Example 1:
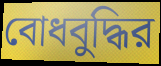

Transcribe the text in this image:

বোধবুদ্ধির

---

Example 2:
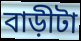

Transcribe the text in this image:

বাড়ীটা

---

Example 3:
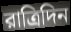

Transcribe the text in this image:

রাত্রিদিন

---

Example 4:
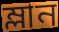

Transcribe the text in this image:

ম্লান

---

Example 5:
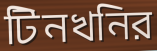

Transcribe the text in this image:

টিনখনির